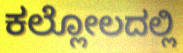
ಕಲ್ಲೋಲದಲ್ಲಿ